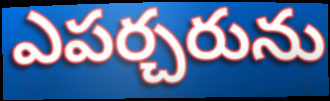
ఎపర్చరును